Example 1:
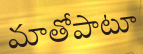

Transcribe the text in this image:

మాతోపాటూ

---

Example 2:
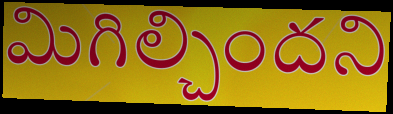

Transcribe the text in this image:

మిగిల్చిందని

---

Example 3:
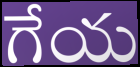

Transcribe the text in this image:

గేయ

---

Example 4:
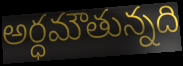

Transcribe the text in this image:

అర్ధమౌతున్నది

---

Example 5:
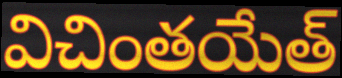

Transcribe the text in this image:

విచింతయేత్